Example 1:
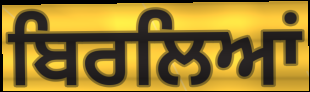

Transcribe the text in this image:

ਬਿਰਲਿਆਂ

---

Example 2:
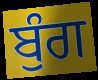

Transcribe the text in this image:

ਬੁੰਗ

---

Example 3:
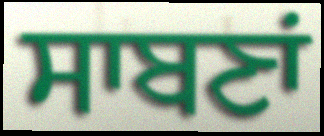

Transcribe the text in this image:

ਸਾਬਣਾਂ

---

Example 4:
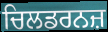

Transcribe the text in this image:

ਚਿਲਡਰਨਜ਼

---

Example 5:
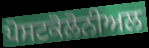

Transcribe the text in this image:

ਪੋਸਟਕੋਲੋਨੀਅਲ